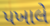
પખાલે